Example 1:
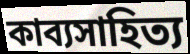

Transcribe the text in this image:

কাব্যসাহিত্য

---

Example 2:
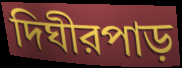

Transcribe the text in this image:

দিঘীরপাড়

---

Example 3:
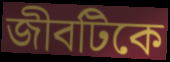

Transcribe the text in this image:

জীবটিকে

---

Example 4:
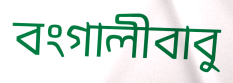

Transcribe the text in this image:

বংগালীবাবু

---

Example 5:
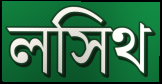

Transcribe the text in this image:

লসিথ